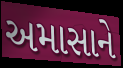
અમાસાને